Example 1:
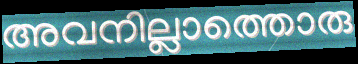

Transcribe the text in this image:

അവനില്ലാത്തൊരു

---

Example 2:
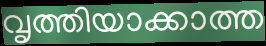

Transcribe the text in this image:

വൃത്തിയാക്കാത്ത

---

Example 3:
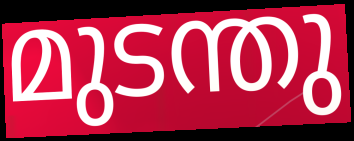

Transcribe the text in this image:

മുടന്തു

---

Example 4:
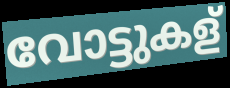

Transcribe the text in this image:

വോട്ടുകള്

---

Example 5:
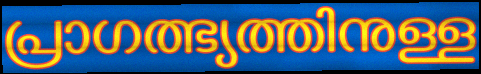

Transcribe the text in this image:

പ്രാഗത്ഭ്യത്തിനുള്ള